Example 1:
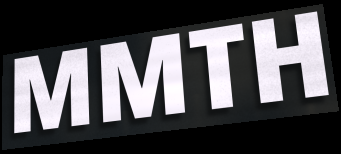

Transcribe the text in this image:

MMTH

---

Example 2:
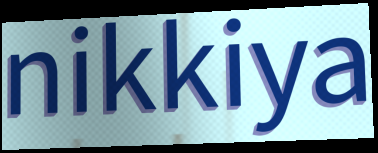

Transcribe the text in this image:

nikkiya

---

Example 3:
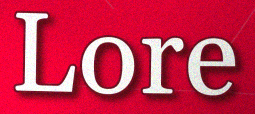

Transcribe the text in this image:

Lore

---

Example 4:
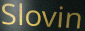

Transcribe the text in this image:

Slovin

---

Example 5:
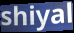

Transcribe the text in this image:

shiyal